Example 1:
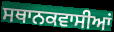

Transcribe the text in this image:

ਸਥਾਨਕਵਾਸੀਆਂ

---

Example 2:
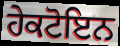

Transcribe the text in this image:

ਹੇਕਟੋਇਨ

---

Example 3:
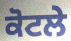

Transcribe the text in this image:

ਕੋਟਲੇ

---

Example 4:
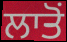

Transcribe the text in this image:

ਲਾਤੋਂ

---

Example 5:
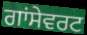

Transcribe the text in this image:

ਗਾਂਸੇਵਰਟ